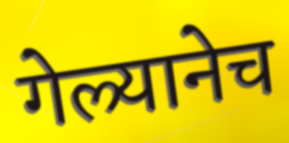
गेल्यानेच